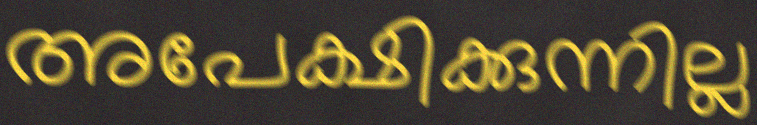
അപേക്ഷിക്കുന്നില്ല